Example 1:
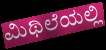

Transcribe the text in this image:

ಮಿಥಿಲೆಯಲ್ಲಿ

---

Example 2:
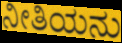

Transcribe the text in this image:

ನೀತಿಯನು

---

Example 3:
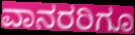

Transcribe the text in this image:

ವಾನರರಿಗೂ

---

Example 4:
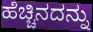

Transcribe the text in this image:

ಹೆಚ್ಚಿನದನ್ನು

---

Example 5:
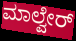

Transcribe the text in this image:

ಮಾಲ್ವೇರ್